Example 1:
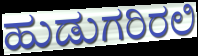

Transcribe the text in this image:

ಹುಡುಗರಿರಲಿ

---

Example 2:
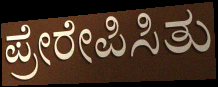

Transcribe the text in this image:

ಪ್ರೇರೇಪಿಸಿತು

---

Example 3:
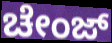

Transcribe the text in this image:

ಚೇಂಜ್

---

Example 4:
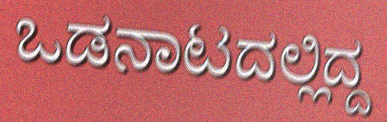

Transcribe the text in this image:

ಒಡನಾಟದಲ್ಲಿದ್ದ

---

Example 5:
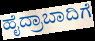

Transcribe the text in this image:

ಹೈದ್ರಾಬಾದಿಗೆ